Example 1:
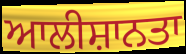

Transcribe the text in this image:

ਆਲੀਸ਼ਾਨਤਾ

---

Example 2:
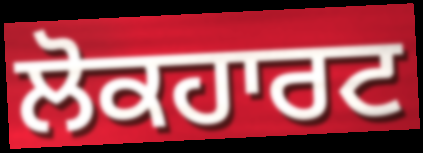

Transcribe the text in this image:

ਲੋਕਹਾਰਟ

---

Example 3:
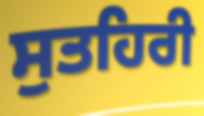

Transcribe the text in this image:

ਸੁਤਹਿਰੀ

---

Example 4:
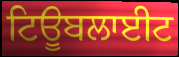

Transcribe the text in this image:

ਟਿਊਬਲਾਈਟ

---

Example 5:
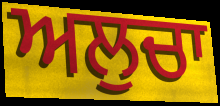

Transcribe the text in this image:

ਅਲੁਚਾ